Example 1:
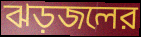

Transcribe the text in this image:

ঝড়জলের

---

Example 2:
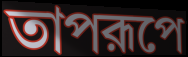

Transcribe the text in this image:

তাপরূপে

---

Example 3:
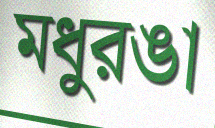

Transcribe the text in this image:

মধুরঙা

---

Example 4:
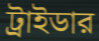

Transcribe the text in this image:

ট্রাইডার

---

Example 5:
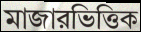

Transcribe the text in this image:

মাজারভিত্তিক